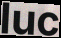
luc